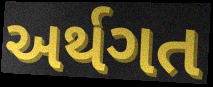
અર્થગત